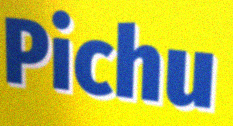
Pichu